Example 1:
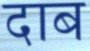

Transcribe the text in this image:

दाब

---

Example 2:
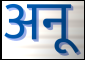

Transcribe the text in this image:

अनू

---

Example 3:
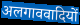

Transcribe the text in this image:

अलगाववादियों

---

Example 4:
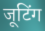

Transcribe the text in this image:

जूटिंग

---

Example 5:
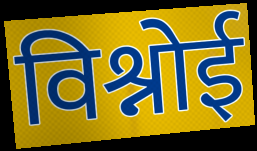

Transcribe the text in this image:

विश्नोई